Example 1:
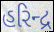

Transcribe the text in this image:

હરિન્દ્ર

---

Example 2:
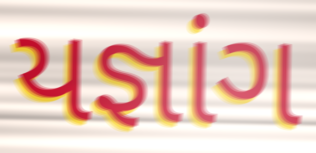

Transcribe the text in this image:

યજ્ઞાંગ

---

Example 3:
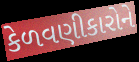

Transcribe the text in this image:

કેળવણીકારોને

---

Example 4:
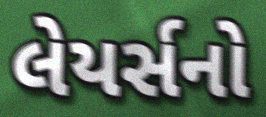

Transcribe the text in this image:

લેયર્સનો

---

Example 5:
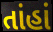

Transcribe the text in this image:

તાંહાં